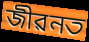
জীৱনত